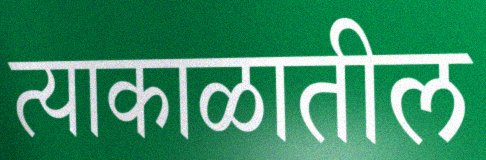
त्याकाळातील